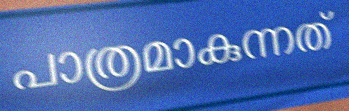
പാത്രമാകുന്നത്